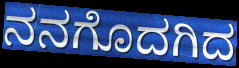
ನನಗೊದಗಿದ